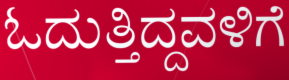
ಓದುತ್ತಿದ್ದವಳಿಗೆ